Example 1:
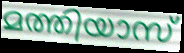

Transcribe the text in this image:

മത്തിയാസ്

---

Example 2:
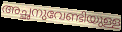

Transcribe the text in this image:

അച്ഛനുവേണ്ടിയുള്ള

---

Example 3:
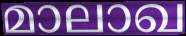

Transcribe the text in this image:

മാലാഖ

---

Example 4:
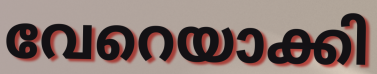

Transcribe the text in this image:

വേറെയാക്കി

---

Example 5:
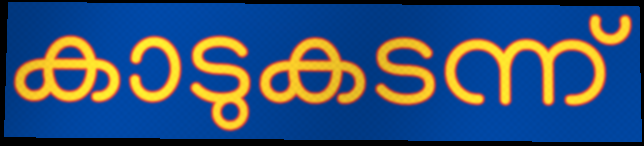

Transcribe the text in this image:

കാടുകടന്ന്